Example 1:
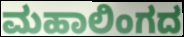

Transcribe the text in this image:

ಮಹಾಲಿಂಗದ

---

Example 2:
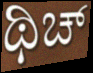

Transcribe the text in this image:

ಥಿಚ್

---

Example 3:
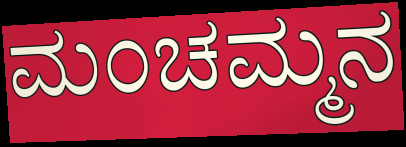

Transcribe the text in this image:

ಮಂಚಮ್ಮನ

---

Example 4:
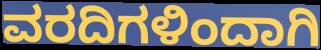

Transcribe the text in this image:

ವರದಿಗಳಿಂದಾಗಿ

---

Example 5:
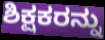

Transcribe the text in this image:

ಶಿಕ್ಷಕರನ್ನು